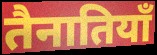
तैनातियाँ